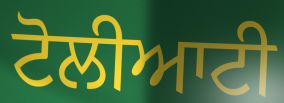
ਟੋਲੀਆਟੀ